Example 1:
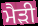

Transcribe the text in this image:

ਮੈੜੀ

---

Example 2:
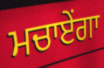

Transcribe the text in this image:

ਮਚਾਏਂਗਾ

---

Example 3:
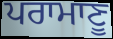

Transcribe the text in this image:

ਪਰਾਮਾਣੂ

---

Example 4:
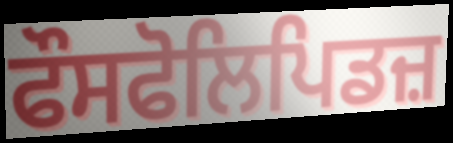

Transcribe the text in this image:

ਫੌਸਫੋਲਿਪਿਡਜ਼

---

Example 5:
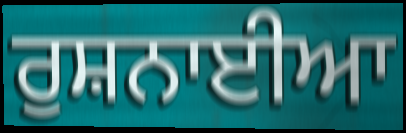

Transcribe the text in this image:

ਰੁਸ਼ਨਾਈਆ